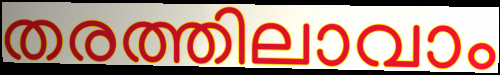
തരത്തിലാവാം